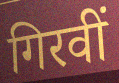
गिरवीं